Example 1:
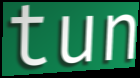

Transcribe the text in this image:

tun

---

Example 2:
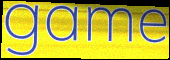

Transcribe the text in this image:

game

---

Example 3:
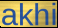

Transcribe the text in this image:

akhi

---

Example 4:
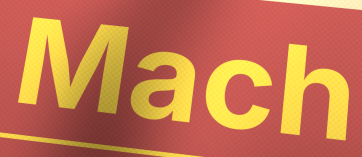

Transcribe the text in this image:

Mach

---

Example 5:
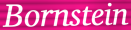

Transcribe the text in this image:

Bornstein